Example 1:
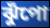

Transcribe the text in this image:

ঝুঁপো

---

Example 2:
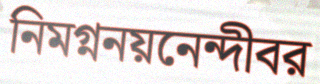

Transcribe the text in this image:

নিমগ্ননয়নেন্দীবর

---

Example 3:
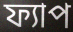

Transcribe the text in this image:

ফ্যাপ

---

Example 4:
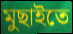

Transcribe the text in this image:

মুছাইতে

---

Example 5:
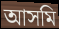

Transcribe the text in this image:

আসমি